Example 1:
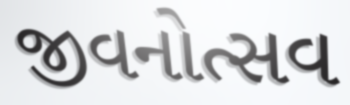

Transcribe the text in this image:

જીવનોત્સવ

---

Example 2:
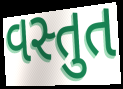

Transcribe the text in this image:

વસ્તુત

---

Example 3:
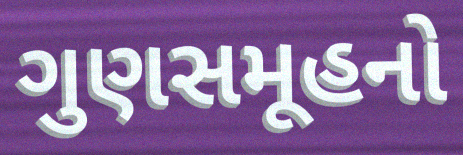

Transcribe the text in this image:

ગુણસમૂહનો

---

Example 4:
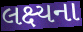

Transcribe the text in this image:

લક્ષ્યના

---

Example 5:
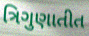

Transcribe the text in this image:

ત્રિગુણાતીત